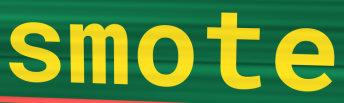
smote